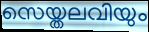
സെയ്തലവിയും